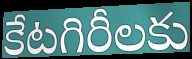
కేటగిరీలకు